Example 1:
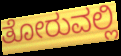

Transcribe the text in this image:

ತೋರುವಲ್ಲಿ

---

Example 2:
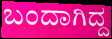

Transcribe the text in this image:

ಬಂದಾಗಿದ್ದ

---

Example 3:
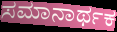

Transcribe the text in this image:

ಸಮಾನಾರ್ಥಕ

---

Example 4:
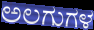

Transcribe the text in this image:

ಅಲಗುಗಳ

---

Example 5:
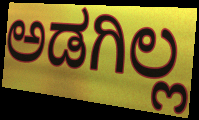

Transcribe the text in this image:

ಅಡಗಿಲ್ಲ